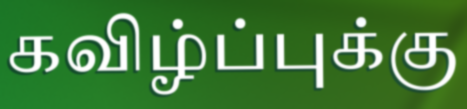
கவிழ்ப்புக்கு